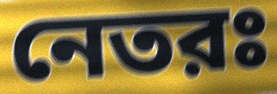
নেতরঃ